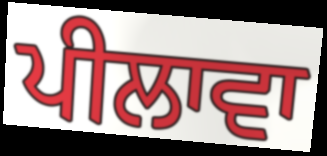
ਪੀਲਾਵਾ